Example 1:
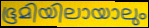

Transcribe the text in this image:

ഭൂമിയിലായാലും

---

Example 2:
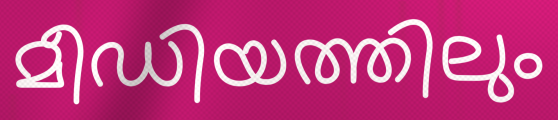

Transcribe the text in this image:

മീഡിയത്തിലും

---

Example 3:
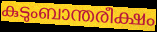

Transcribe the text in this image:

കുടുംബാന്തരീക്ഷം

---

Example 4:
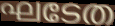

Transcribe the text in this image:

ഘടേത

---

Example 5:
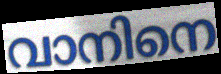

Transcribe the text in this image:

വാനിനെ